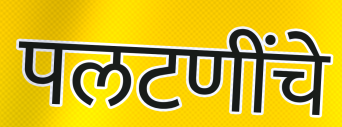
पलटणींचे